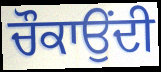
ਚੌਕਾਉਂਦੀ